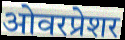
ओवरप्रेशर